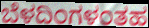
ಬೆಳದಿಂಗಳಂತಹ